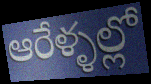
ఆరేళ్ళల్లో